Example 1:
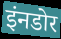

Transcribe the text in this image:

इंनडोर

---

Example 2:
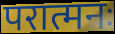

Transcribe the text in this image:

परात्मनः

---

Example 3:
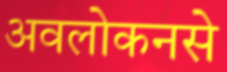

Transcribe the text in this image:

अवलोकनसे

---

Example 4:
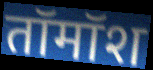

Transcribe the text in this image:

तॉमॉश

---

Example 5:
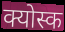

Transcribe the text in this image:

क्योस्क